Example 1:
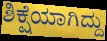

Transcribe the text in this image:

ಶಿಕ್ಷೆಯಾಗಿದ್ದು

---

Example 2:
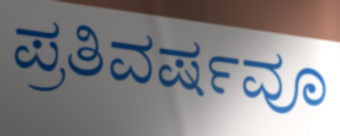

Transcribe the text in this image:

ಪ್ರತಿವರ್ಷವೂ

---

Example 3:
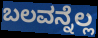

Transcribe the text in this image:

ಬಲವನ್ನೆಲ್ಲ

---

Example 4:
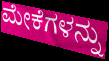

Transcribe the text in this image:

ಮೇಕೆಗಳನ್ನು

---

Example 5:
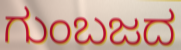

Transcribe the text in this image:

ಗುಂಬಜದ